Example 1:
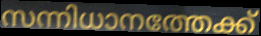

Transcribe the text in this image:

സന്നിധാനത്തേക്ക്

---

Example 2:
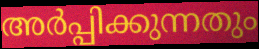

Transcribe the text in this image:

അർപ്പിക്കുന്നതും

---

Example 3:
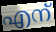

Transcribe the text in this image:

എന്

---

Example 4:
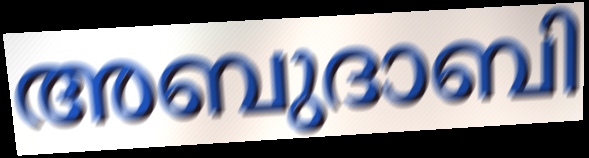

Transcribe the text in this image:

അബുദാബി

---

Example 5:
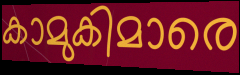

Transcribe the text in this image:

കാമുകിമാരെ